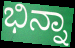
ಭಿನ್ನಾ